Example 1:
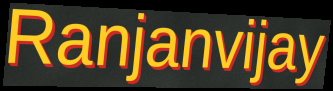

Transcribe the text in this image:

Ranjanvijay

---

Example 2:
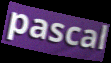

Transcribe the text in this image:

pascal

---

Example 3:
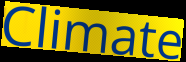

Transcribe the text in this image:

Climate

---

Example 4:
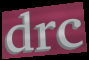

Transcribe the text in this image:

drc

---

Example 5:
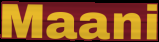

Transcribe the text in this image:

Maani